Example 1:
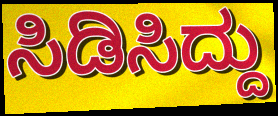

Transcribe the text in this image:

ಸಿಡಿಸಿದ್ದು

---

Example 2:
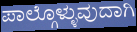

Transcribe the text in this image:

ಪಾಲ್ಗೊಳ್ಳುವುದಾಗಿ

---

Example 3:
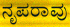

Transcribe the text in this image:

ನೃಪರಾವು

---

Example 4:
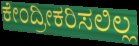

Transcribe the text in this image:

ಕೇಂದ್ರೀಕರಿಸಲಿಲ್ಲ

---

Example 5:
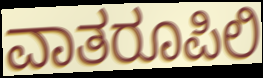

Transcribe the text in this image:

ವಾತರೂಪಿಲಿ